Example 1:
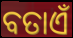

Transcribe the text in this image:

ବତାଏଁ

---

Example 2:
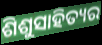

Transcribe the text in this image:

ଶିଶୁସାହିତ୍ୟର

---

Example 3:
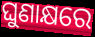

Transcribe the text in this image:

ଘୁଣାକ୍ଷରେ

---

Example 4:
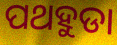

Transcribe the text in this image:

ପଥହୁଡା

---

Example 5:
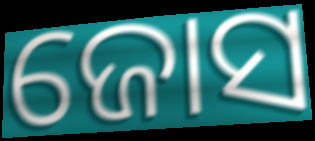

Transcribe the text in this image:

ଜୋସ